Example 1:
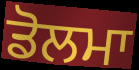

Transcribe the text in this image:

ਡੋਲਮਾ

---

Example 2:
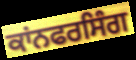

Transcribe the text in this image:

ਕਾਂਨਫਰਸਿੰਗ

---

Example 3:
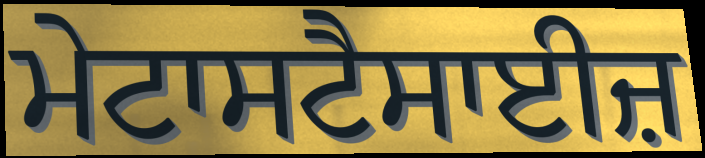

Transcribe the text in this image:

ਮੇਟਾਸਟੈਸਾਈਜ਼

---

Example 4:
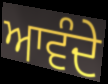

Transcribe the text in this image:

ਆਵੰਦੇ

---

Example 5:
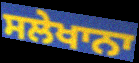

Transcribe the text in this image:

ਸਲੇਖਾਨਾ